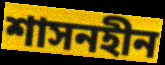
শাসনহীন